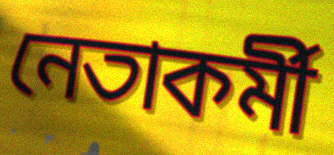
নেতাকর্মী